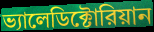
ভ্যালেডিক্টোরিয়ান